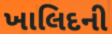
ખાલિદની